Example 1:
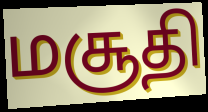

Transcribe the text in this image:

மசூதி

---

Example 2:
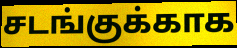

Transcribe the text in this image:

சடங்குக்காக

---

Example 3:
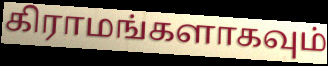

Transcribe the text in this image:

கிராமங்களாகவும்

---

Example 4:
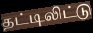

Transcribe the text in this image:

தட்டிலிட்டு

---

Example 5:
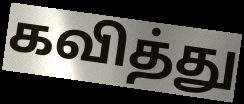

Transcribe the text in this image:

கவித்து